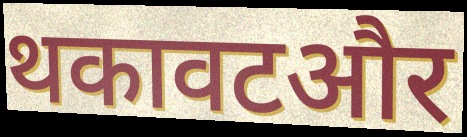
थकावटऔर